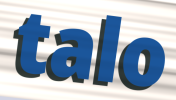
talo